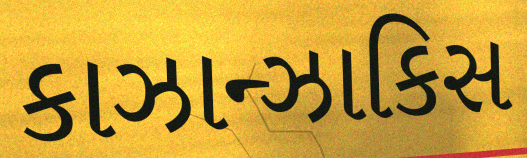
કાઝાન્ઝાકિસ